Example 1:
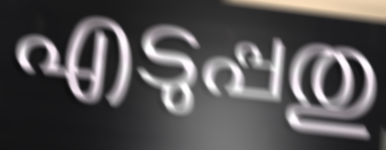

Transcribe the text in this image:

എടുപ്പതു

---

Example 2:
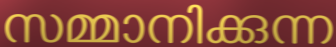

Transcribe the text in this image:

സമ്മാനിക്കുന്ന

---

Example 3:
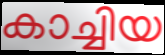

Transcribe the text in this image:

കാച്ചിയ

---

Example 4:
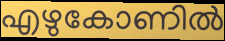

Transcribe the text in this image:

എഴുകോണിൽ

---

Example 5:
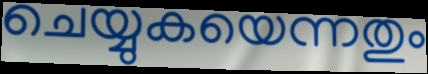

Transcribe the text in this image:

ചെയ്യുകയെന്നതും